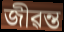
জীৱন্ত